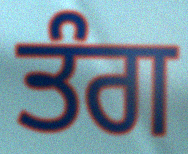
ਤੰਗ